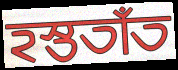
হস্ততাঁত